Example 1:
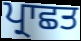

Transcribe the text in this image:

ਪ੍ਰਾਛਤ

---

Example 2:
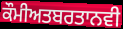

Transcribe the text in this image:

ਕੌਮੀਅਤਬਰਤਾਨਵੀ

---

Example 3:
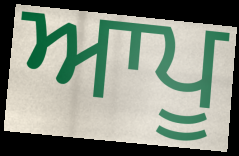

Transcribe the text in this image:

ਆਪੂ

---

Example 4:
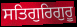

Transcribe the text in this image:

ਸਤਿਗੁਰਿਗੁਰੂ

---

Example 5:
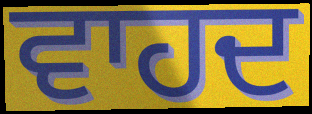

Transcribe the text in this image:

ਵਾਹਦ